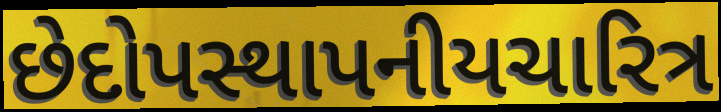
છેદોપસ્થાપનીયચારિત્ર